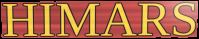
HIMARS